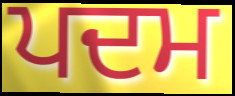
ਪਦਮ